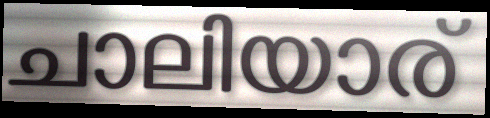
ചാലിയാര്